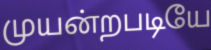
முயன்றபடியே